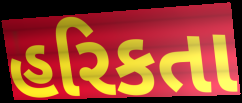
હરિકતા